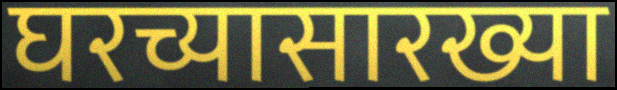
घरच्यासारख्या